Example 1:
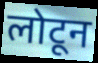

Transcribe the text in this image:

लोटून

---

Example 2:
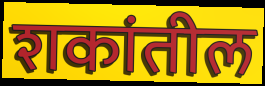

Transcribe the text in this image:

शकांतील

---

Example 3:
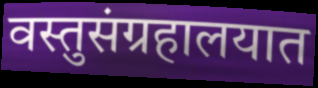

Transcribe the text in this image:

वस्तुसंग्रहालयात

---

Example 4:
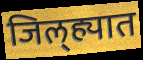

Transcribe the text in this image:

जिल्ह्यात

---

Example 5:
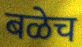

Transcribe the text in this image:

बळेच